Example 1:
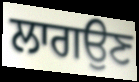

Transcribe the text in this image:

ਲਾਗਉਣ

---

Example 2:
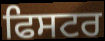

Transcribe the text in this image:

ਫਿਸਟਰ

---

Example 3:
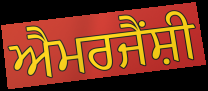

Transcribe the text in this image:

ਐਮਰਜੈਂਸ਼ੀ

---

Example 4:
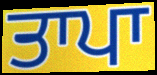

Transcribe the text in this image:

ਤਾਪਾ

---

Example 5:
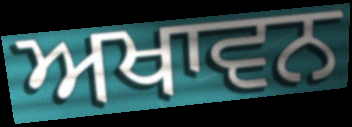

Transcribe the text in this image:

ਅਖਾਵਨ